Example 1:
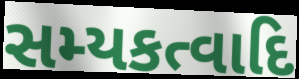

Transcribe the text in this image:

સમ્યકત્વાદિ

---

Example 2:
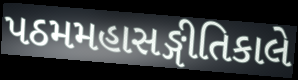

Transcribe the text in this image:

પઠમમહાસઙ્ગીતિકાલે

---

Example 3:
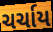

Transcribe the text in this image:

ચર્ચાય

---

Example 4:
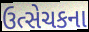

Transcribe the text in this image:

ઉત્સેચકના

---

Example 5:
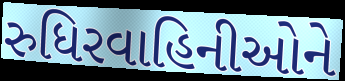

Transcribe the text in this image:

રુધિરવાહિનીઓને